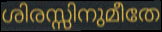
ശിരസ്സിനുമീതേ